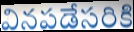
వినపడేసరికి